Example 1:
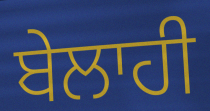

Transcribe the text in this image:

ਬੇਲਾਹੀ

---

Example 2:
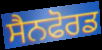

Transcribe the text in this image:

ਸੈਨਫੋਰਡ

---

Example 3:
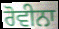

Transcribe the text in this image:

ਰੋਵੀਨਾ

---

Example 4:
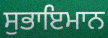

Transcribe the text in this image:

ਸੁਭਾਇਮਾਨ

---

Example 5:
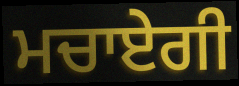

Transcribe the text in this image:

ਮਚਾਏਗੀ